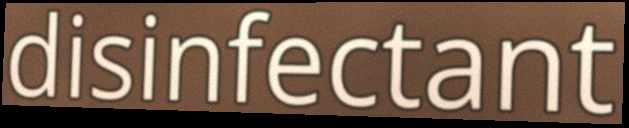
disinfectant